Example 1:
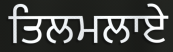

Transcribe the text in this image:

ਤਿਲਮਲਾਏ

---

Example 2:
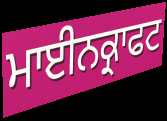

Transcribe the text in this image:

ਮਾਈਨਕ੍ਰਾਫਟ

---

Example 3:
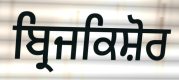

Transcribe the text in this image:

ਬ੍ਰਿਜਕਿਸ਼ੋਰ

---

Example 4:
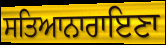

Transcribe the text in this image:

ਸਤਿਆਨਾਰਾਇਣਾ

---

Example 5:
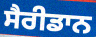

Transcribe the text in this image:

ਸੈਰੀਡਾਨ